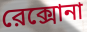
রেক্সোনা